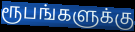
ரூபங்களுக்கு